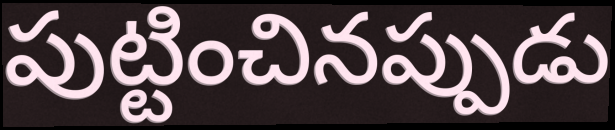
పుట్టించినప్పుడు